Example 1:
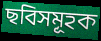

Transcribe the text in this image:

ছবিসমূহক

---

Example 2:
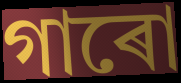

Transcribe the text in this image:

গাৰো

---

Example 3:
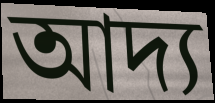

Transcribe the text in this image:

আদ্য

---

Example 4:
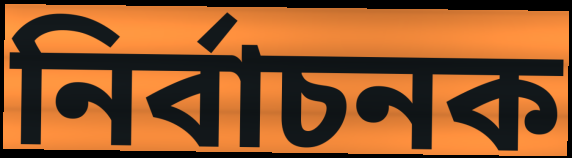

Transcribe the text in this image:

নিৰ্বাচনক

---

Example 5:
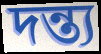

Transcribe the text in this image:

দন্ত্য